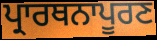
ਪ੍ਰਾਰਥਨਾਪੂਰਣ